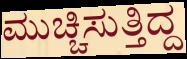
ಮುಚ್ಚಿಸುತ್ತಿದ್ದ